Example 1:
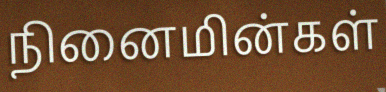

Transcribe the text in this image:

நினைமின்கள்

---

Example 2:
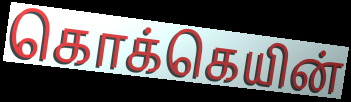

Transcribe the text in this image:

கொக்கெயின்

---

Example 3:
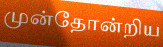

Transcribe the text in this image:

முன்தோன்றிய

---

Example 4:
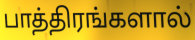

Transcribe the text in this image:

பாத்திரங்களால்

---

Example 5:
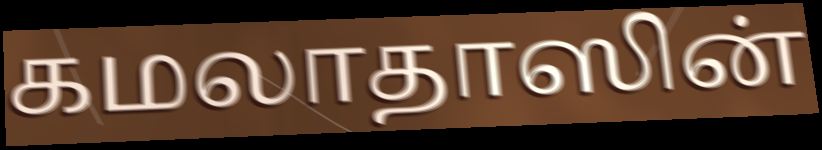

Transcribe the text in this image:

கமலாதாஸின்